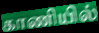
காணியில்